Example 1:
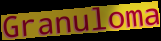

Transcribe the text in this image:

Granuloma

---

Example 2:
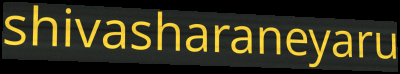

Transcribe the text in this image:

shivasharaneyaru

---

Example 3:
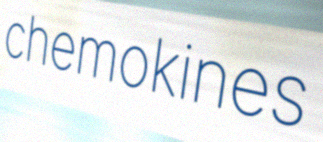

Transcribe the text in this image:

chemokines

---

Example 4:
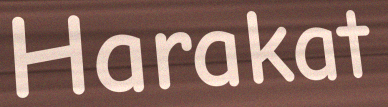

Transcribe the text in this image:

Harakat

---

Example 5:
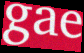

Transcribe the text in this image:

gae